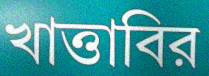
খাত্তাবির